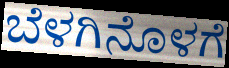
ಬೆಳಗಿನೊಳಗೆ